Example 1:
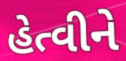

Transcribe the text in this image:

હેત્વીને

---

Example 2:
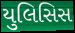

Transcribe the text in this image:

યુલિસિસ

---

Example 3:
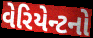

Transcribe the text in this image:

વેરિયેન્ટનો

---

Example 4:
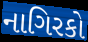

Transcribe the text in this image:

નાગિરકો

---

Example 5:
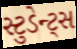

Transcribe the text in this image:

સ્ટુડેન્ટ્સ